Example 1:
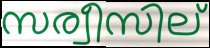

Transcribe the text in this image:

സര്വീസില്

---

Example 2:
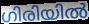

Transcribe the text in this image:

ഗിരിയിൽ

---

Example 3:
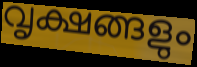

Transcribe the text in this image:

വൃക്ഷങ്ങളും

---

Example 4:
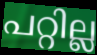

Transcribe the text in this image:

പറ്റില്ല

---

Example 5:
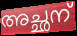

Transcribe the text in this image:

അച്ഛന്